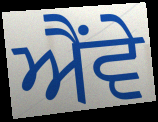
ਐਂਵੇ